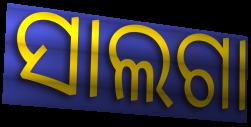
ସାଲଗା